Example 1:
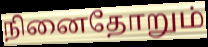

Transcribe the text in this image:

நினைதோறும்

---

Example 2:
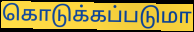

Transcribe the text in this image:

கொடுக்கப்படுமா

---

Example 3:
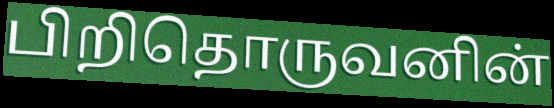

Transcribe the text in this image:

பிறிதொருவனின்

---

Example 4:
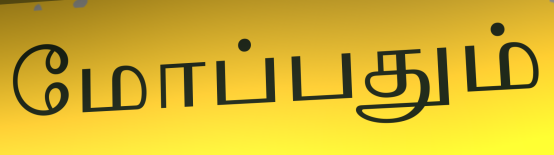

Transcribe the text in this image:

மோப்பதும்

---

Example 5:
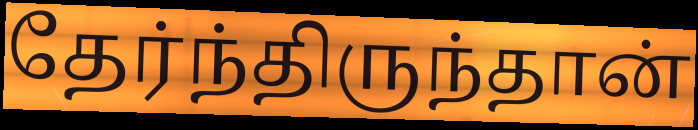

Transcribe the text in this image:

தேர்ந்திருந்தான்